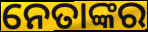
ନେତାଙ୍କର